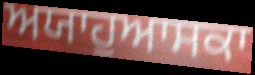
ਅਯਾਹੁਆਸਕਾ